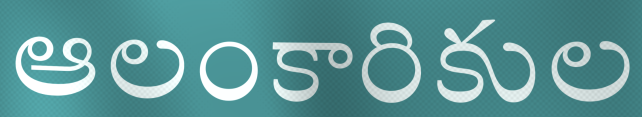
ఆలంకారికుల